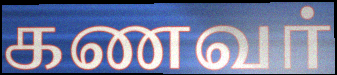
கணவர்